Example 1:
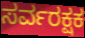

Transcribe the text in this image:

ಸರ್ವರಕ್ಷಕ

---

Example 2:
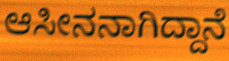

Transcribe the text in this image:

ಆಸೀನನಾಗಿದ್ದಾನೆ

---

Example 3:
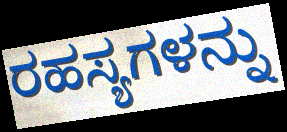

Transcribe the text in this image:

ರಹಸ್ಯಗಳನ್ನು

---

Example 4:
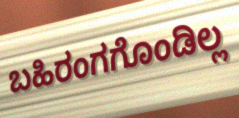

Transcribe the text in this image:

ಬಹಿರಂಗಗೊಂಡಿಲ್ಲ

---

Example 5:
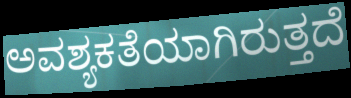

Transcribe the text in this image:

ಅವಶ್ಯಕತೆಯಾಗಿರುತ್ತದೆ